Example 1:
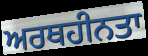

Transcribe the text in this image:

ਅਰਥਹੀਨਤਾ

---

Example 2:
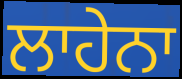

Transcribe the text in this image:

ਲਾਹੇਨਾ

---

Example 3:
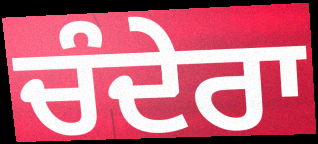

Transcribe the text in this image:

ਚੰਦੇਰਾ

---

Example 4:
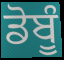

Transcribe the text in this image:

ਡੋਬੂੰ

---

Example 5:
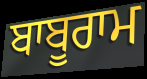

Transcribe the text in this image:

ਬਾਬੂਰਾਮ